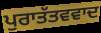
ਪੁਰਾਤੱਤਵਵਾਦ